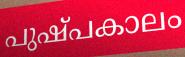
പുഷ്പകാലം